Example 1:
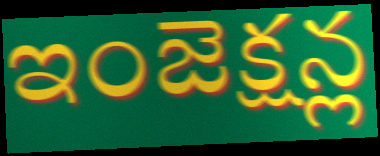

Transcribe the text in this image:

ఇంజెక్షన్ల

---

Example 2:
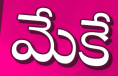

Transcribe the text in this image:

మేకే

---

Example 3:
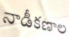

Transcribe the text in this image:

నాడీకణాల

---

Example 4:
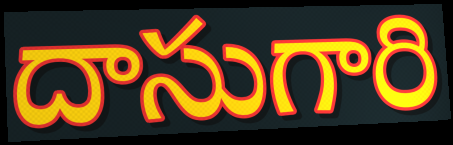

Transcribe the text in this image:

దాసుగారి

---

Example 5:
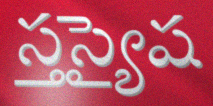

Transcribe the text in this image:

స్తస్యైష